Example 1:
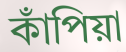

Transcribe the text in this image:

কাঁপিয়া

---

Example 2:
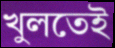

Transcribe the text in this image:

খুলতেই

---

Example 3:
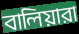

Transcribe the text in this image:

বালিয়ারা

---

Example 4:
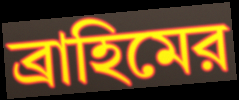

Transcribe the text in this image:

ব্রাহিমের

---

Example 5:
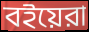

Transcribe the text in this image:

বইয়েরা